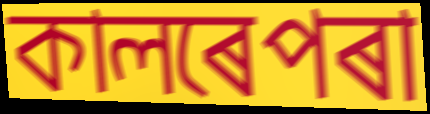
কালৰেপৰা